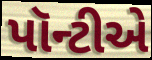
પૉન્ટીએ